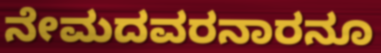
ನೇಮದವರನಾರನೂ